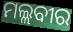
ମଲ୍ଲବୀର